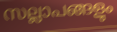
സല്ലാപങ്ങളും